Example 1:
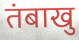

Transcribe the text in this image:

तंबाखु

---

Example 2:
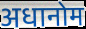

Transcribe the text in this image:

अधानोम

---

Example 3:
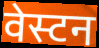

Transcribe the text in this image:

वेस्टन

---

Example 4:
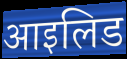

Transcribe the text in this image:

आइलिड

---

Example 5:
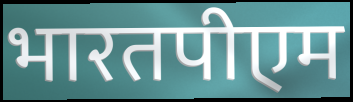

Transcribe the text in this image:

भारतपीएम